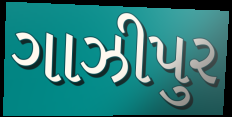
ગાઝીપુર